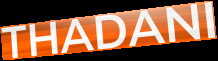
THADANI